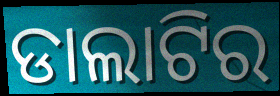
ଡାଲାଟିର